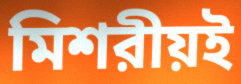
মিশরীয়ই